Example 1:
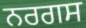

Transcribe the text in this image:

ਨਰਗਸ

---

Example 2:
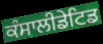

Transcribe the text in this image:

ਕੰਸਾਲੀਡੇਟਿਡ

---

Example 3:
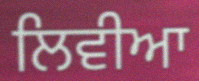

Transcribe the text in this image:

ਲਿਵੀਆ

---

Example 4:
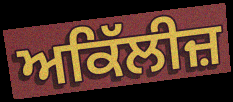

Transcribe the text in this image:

ਅਕਿੱਲੀਜ਼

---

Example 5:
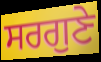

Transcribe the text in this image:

ਸਰਗੁਣੇ